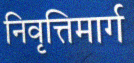
निवृत्तिमार्ग